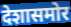
देशासमोर